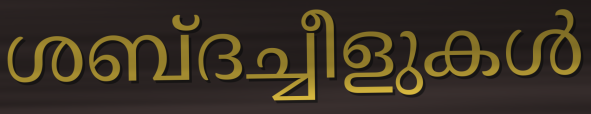
ശബ്ദച്ചീളുകൾ